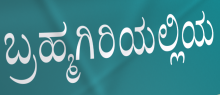
ಬ್ರಹ್ಮಗಿರಿಯಲ್ಲಿಯ